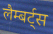
लैम्बर्ट्स